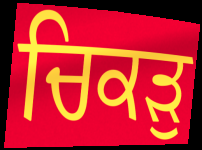
ਚਿਕੜੁ